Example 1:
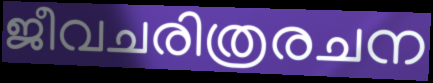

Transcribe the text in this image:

ജീവചരിത്രരചന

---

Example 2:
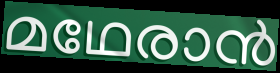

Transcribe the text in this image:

മഥേരാൻ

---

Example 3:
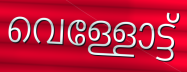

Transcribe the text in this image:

വെള്ളോട്ട്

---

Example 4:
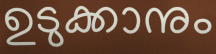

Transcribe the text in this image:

ഉടുക്കാനും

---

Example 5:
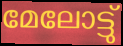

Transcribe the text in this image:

മേലോട്ടു്